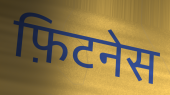
फ़िटनेस